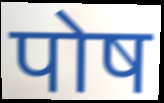
पोष